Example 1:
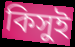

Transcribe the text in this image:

কিসুই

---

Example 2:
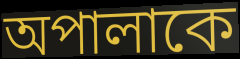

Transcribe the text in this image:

অপালাকে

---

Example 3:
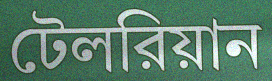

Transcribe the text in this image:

টেলরিয়ান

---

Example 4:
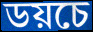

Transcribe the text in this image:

ডয়চে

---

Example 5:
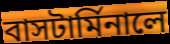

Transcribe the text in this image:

বাসটার্মিনালে